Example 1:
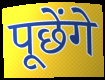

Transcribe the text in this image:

पूछेंगे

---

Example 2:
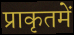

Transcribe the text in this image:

प्राकृतमें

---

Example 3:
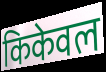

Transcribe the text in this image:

किकेवल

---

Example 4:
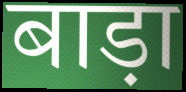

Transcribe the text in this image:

बाड़ा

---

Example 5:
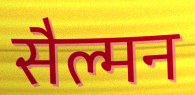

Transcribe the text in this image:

सैल्मन